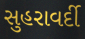
સુહરાવર્દી